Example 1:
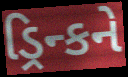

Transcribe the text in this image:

ડ્રિન્કને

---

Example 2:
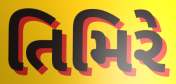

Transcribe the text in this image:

તિમિરે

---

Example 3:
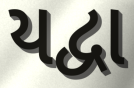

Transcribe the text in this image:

યદ્વા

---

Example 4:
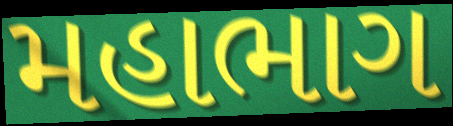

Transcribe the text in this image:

મહાભાગ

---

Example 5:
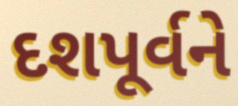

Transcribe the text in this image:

દશપૂર્વને